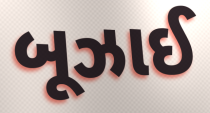
બૂઝાઈ